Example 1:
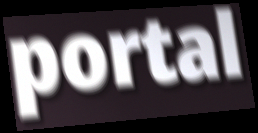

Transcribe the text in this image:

portal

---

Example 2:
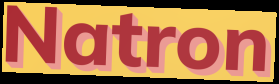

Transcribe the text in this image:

Natron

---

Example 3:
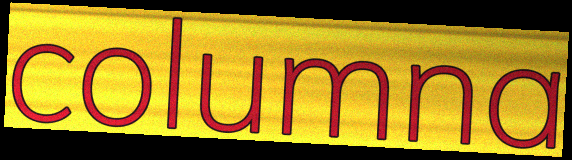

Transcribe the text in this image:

columna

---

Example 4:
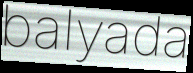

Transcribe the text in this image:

balyada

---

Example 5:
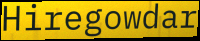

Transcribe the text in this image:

Hiregowdar